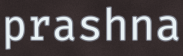
prashna